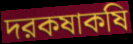
দরকষাকষি